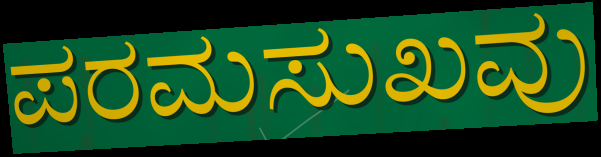
ಪರಮಸುಖವು